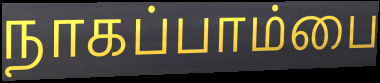
நாகப்பாம்பை